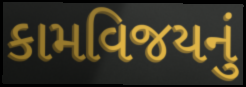
કામવિજયનું